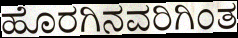
ಹೊರಗಿನವರಿಗಿಂತ